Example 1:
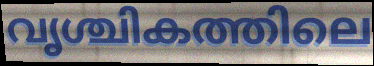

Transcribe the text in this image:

വൃശ്ചികത്തിലെ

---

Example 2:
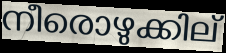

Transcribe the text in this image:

നീരൊഴുക്കില്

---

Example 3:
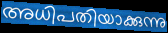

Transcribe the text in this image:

അധിപതിയാക്കുന്നു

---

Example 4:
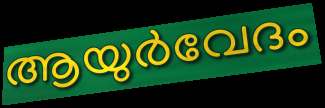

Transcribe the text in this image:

ആയുർവേദം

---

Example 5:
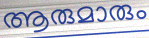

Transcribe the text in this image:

ആരുമാരും